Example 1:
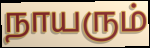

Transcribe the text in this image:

நாயரும்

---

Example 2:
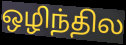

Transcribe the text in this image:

ஒழிந்தில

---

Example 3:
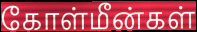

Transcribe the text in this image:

கோள்மீன்கள்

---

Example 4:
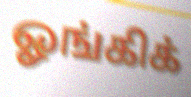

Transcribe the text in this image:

ஓங்கிக்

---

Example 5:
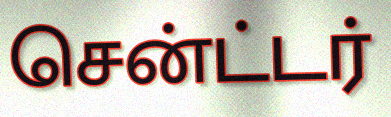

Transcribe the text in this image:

சென்ட்டர்